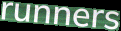
runners